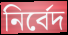
নির্বেদ